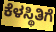
ಕೆಳಸ್ಥಿತಿಗೆ